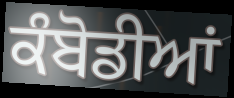
ਕੰਬੋਡੀਆਂ